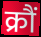
क्रौं